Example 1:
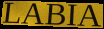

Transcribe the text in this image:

LABIA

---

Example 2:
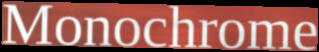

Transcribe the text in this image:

Monochrome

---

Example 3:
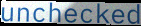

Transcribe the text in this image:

unchecked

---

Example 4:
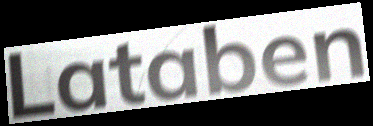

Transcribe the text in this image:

Lataben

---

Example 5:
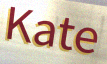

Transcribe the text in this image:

Kate